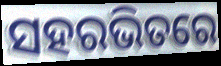
ସହରଭିତରେ